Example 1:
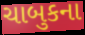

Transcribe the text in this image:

ચાબુકના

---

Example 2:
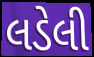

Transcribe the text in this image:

લડેલી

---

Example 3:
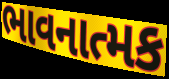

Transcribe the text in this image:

ભાવનાત્મક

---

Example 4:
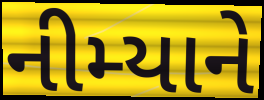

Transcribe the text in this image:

નીમ્યાને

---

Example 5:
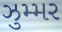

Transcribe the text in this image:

ઝુમ્મર